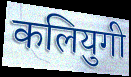
कलियुगी